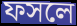
ফসলে